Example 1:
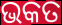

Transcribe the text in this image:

ଭକତ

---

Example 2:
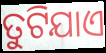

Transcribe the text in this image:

ତୁଟିଯାଏ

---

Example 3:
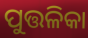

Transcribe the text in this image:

ପୁତ୍ତଳିକା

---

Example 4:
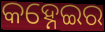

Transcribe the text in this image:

କହ୍ନେଇର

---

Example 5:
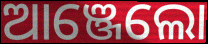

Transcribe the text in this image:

ଆଞ୍ଜେଲୋ